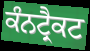
ਕੰਨਟ੍ਰੈਕਟ